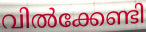
വിൽക്കേണ്ടി